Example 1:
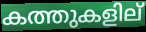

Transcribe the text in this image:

കത്തുകളില്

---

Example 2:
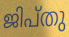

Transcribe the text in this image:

ജിപ്തു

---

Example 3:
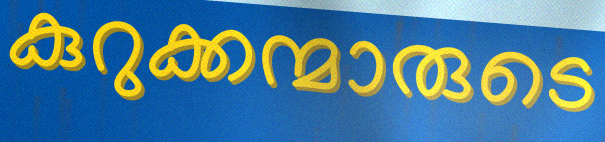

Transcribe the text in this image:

കുറുക്കന്മാരുടെ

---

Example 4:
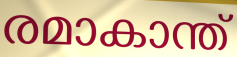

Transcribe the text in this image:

രമാകാന്ത്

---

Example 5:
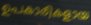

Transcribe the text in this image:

ഉപകാരികളായ